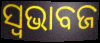
ସ୍ୱଭାବଜ